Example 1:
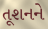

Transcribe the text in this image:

તૂશનને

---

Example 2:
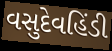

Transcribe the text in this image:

વસુદેવહિંડી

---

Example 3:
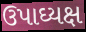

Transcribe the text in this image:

ઉપાઘ્યક્ષ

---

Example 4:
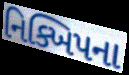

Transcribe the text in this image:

નિક્ખિપના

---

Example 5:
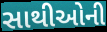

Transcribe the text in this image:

સાથીઓની